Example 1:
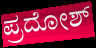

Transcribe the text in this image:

ಪ್ರದೋಶ್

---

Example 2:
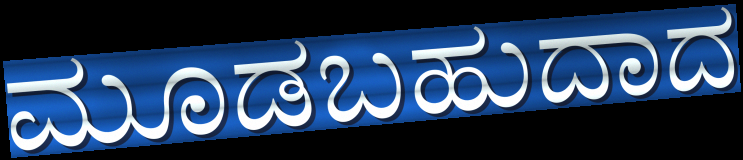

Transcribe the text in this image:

ಮೂಡಬಹುದಾದ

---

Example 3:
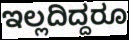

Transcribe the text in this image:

ಇಲ್ಲದಿದ್ದರೂ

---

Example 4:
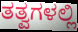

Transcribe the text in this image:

ತತ್ವಗಳಲ್ಲಿ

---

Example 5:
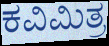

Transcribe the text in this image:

ಕವಿಮಿತ್ರ